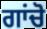
ਗਾਂਚੋ